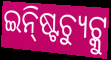
ଇନ୍ଷ୍ଟିଚ୍ୟୁଟ୍କୁ